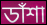
ডাঁশা